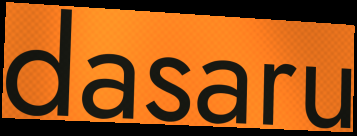
dasaru